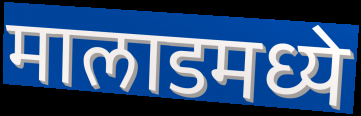
मालाडमध्ये